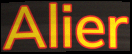
Alier